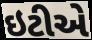
ઇટીએ